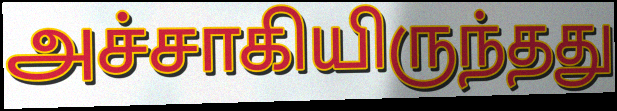
அச்சாகியிருந்தது